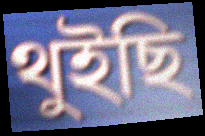
থুইছি